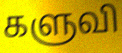
களுவி